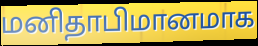
மனிதாபிமானமாக